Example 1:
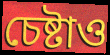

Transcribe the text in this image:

চেষ্টাও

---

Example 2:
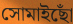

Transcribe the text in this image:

সোমাইছোঁ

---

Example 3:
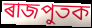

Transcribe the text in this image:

ৰাজপুতক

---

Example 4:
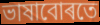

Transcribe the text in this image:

ভাষাবোৰতে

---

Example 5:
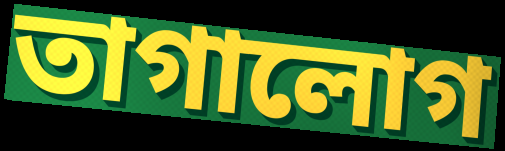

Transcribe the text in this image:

তাগালোগ